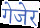
गेजेर